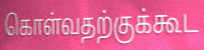
கொள்வதற்குக்கூட